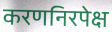
करणनिरपेक्ष